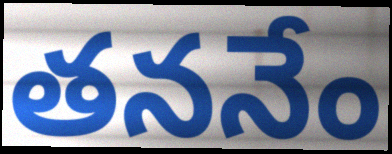
తననేం